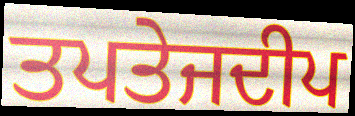
ਤਪਤੇਜਦੀਪ